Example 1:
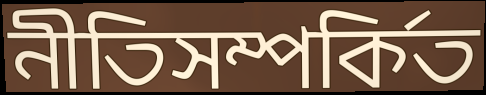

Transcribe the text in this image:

নীতিসম্পর্কিত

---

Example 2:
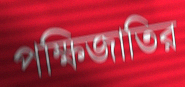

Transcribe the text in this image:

পক্ষিজাতির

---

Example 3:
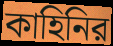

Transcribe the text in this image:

কাহিনির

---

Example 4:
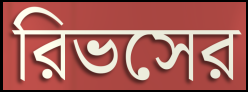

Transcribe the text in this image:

রিভসের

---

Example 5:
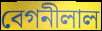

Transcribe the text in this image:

বেগনীলাল